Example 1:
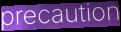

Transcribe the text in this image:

precaution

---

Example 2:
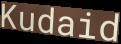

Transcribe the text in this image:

Kudaid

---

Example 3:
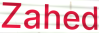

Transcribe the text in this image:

Zahed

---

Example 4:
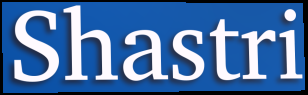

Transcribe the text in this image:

Shastri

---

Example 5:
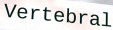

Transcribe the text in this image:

Vertebral